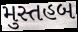
મુસ્તહબ